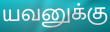
யவனுக்கு